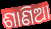
ଶାଣିଆ